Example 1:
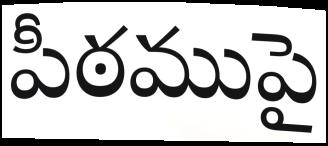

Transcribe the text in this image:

పీఠముపై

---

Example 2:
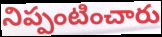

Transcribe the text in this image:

నిప్పంటించారు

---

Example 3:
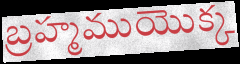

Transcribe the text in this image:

బ్రహ్మముయొక్క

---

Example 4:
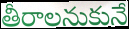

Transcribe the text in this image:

తీరాలనుకునే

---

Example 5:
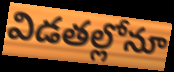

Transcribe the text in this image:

విడతల్లోనూ